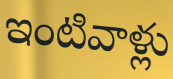
ఇంటివాళ్లు